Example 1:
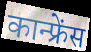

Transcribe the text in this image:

कान्फ्रेंस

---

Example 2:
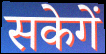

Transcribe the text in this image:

सकेगें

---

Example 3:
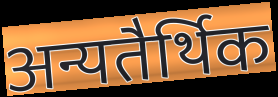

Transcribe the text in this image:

अन्यतैर्थिक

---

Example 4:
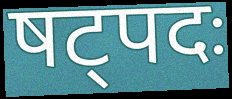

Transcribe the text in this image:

षट्पदः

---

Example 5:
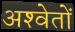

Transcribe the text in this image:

अश्‍वेतों